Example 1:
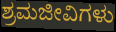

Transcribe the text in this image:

ಶ್ರಮಜೀವಿಗಳು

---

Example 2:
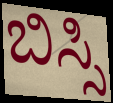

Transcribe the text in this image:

ಬಿಸ್ಸಿ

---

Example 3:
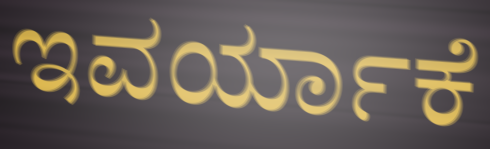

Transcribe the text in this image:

ಇವರ್ಯಾಕೆ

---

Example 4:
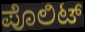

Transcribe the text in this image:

ಪೊಲಿಟ್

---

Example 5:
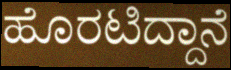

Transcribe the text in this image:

ಹೊರಟಿದ್ದಾನೆ